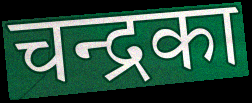
चन्द्रका